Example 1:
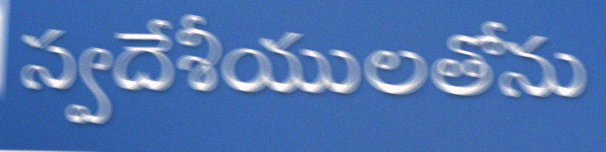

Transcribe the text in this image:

స్వదేశీయులతోను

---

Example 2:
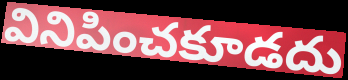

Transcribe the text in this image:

వినిపించకూడదు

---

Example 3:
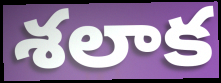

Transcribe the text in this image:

శలాక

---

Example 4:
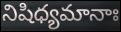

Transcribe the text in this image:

నిషిధ్యమానాః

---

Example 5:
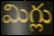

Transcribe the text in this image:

మిగ్లు